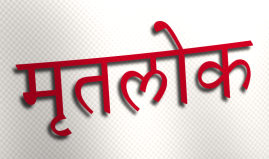
मृतलोक